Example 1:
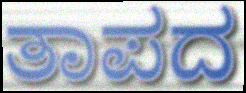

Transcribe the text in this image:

ತಾಪದ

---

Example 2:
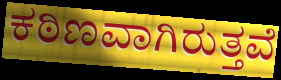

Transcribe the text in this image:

ಕಠಿಣವಾಗಿರುತ್ತವೆ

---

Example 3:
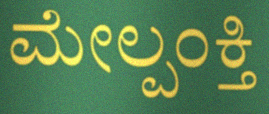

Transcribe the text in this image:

ಮೇಲ್ಪಂಕ್ತಿ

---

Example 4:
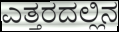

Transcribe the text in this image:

ಎತ್ತರದಲ್ಲಿನ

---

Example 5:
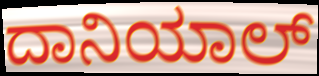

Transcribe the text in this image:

ದಾನಿಯಾಲ್